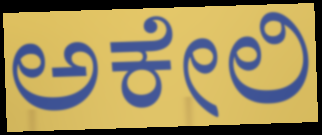
ಅಕೇಲಿ